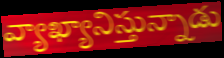
వ్యాఖ్యానిస్తున్నాడు